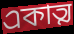
একাত্ম